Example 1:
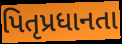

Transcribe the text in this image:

પિતૃપ્રધાનતા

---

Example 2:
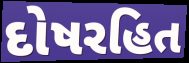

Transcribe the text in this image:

દોષરહિત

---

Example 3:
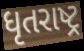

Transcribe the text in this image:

ધૃતરાષ્ટ્ર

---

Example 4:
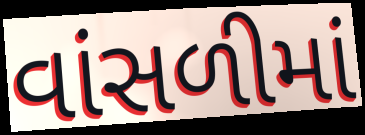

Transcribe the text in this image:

વાંસળીમાં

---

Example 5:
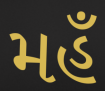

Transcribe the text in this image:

મહઁ